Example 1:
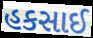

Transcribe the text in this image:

હકસાઈ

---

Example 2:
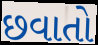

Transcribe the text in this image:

છવાતો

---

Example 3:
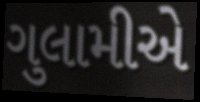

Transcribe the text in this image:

ગુલામીએ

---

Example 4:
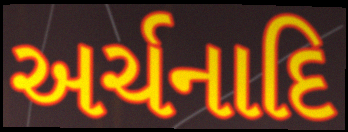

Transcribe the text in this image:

અર્ચનાદિ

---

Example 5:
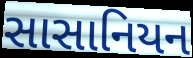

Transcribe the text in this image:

સાસાનિયન